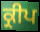
ਕ੍ਰੀਪ